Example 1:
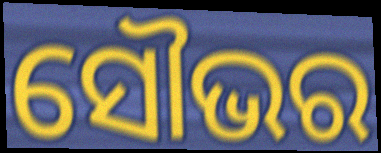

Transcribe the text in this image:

ସୌଭର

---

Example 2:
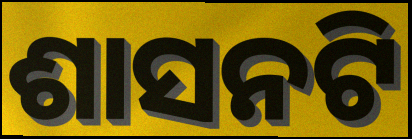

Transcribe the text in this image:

ଶାସନଟି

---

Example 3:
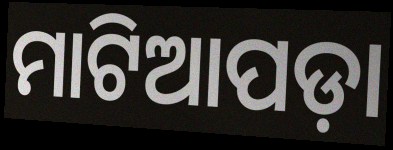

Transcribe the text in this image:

ମାଟିଆପଡ଼ା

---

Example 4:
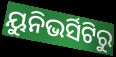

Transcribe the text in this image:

ୟୁନିଭର୍ସିଟିରୁ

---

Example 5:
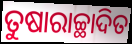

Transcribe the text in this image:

ତୁଷାରାଚ୍ଛାଦିତ